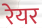
रेयर